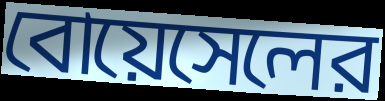
বোয়েসেলের